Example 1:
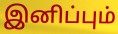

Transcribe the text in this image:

இனிப்பும்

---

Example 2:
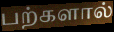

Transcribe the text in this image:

பற்களால்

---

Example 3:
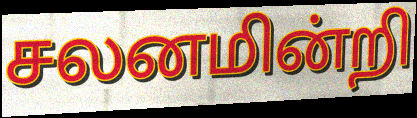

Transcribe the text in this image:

சலனமின்றி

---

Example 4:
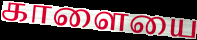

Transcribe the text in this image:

காளையை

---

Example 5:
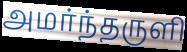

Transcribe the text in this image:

அமர்ந்தருளி